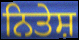
ਨਿਤੇਸ਼